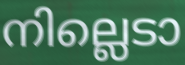
നില്ലെടാ